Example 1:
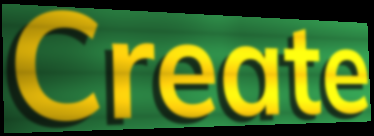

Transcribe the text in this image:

Create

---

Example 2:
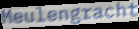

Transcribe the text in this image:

Meulengracht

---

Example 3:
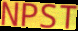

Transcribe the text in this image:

NPST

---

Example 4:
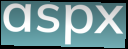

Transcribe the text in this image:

aspx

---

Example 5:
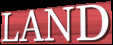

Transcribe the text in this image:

LAND